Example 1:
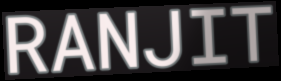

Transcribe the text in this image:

RANJIT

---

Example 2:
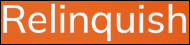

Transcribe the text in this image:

Relinquish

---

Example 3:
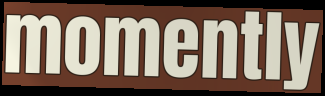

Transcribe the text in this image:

momently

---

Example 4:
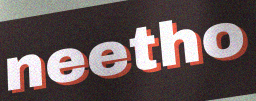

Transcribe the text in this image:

neetho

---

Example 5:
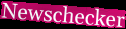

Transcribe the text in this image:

Newschecker